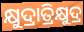
କ୍ଷୁଦ୍ରାତ୍ରିକ୍ଷୁଦ୍ର